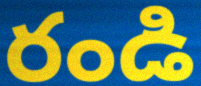
రండి